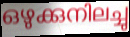
ഒഴുക്കുനിലച്ചു